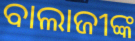
ବାଲାଜୀଙ୍କ